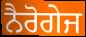
ਨੈਰੋਗੇਜ